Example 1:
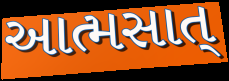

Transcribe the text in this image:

આત્મસાત્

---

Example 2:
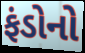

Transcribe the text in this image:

ફંડોનો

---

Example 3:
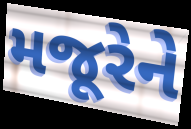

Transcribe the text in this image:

મજૂરેને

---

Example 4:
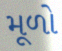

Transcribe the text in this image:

મૂળો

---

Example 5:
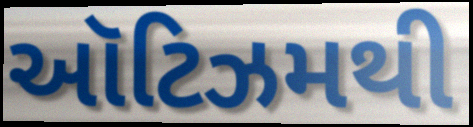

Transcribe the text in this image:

ઑટિઝમથી